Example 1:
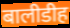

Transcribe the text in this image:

बालीडीह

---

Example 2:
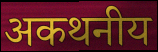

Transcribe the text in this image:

अकथनीय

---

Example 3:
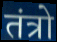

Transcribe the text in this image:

तंत्रो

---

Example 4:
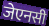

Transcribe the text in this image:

जेएनसी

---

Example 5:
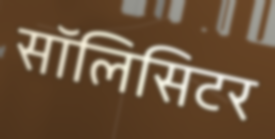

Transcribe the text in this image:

सॉलिसिटर